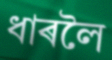
ধাৰলৈ